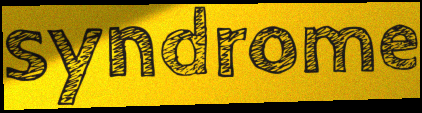
syndrome